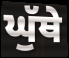
ਘੁੱਥੇ